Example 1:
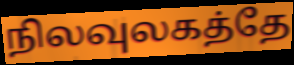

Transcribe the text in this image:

நிலவுலகத்தே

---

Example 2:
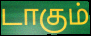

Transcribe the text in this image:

டாகும்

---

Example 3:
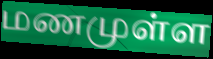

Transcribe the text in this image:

மணமுள்ள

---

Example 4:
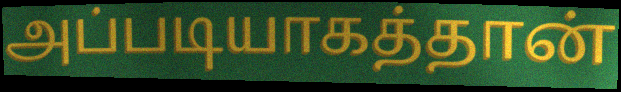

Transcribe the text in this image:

அப்படியாகத்தான்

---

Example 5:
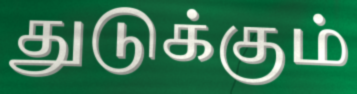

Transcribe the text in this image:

துடுக்கும்